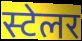
स्टेलर